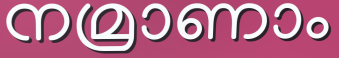
നമ്രാണാം